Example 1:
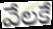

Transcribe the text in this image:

వేలకే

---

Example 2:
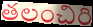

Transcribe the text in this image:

తలంచిరి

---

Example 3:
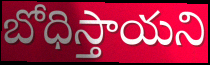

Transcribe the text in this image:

బోధిస్తాయని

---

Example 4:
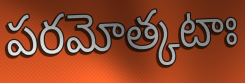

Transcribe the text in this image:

పరమోత్కటాః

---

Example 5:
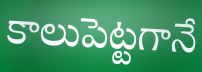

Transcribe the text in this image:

కాలుపెట్టగానే